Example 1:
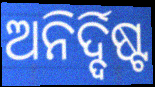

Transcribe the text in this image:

ଅନିର୍ଦ୍ଦିଷ୍ଟ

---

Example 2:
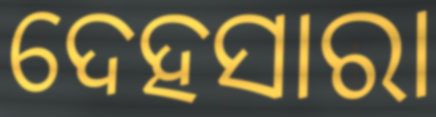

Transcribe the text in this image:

ଦେହସାରା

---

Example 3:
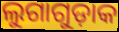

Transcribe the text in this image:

ଲୁଗାଗୁଡ଼ାକ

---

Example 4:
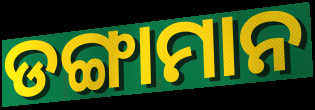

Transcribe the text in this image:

ଡଙ୍ଗାମାନ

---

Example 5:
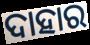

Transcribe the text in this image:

ଦାହାର